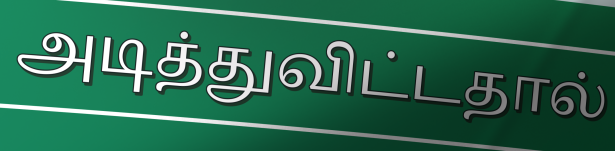
அடித்துவிட்டதால்